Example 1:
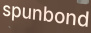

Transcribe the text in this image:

spunbond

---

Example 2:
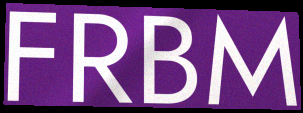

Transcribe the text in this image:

FRBM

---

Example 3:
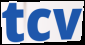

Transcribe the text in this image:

tcv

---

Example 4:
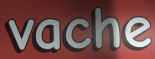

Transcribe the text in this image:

vache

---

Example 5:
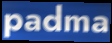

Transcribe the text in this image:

padma